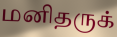
மனிதருக்